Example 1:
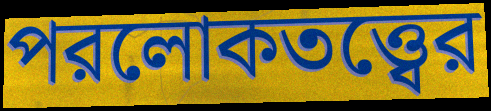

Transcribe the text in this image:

পরলোকতত্ত্বের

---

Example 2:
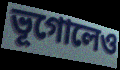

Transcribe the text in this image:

ভূগোলেও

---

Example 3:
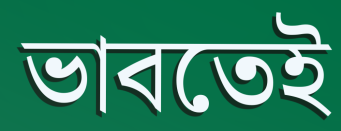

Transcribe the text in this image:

ভাবতেই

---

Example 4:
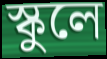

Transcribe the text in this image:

স্কুলে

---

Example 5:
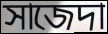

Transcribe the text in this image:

সাজেদা